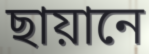
ছায়ানে